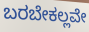
ಬರಬೇಕಲ್ಲವೇ